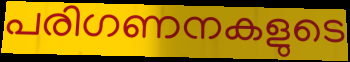
പരിഗണനകളുടെ